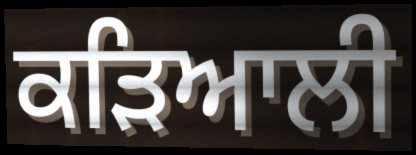
ਕੜਿਆਲੀ